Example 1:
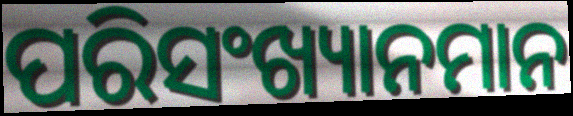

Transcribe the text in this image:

ପରିସଂଖ୍ୟାନମାନ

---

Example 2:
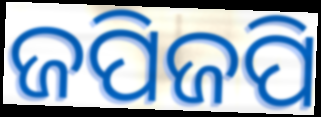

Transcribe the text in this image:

ଜପିଜପି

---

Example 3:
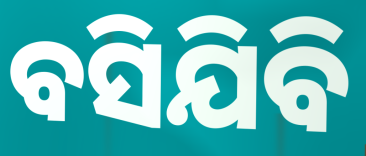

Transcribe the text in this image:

ବସିଯିବି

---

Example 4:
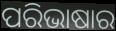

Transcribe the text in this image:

ପରିଭାଷାର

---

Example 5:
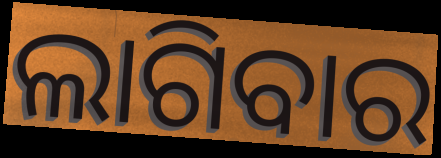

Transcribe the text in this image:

ଲାଗିବାର